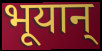
भूयान्